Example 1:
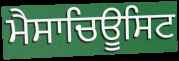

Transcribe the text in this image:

ਮੈਸਾਚਿਊਸਿਟ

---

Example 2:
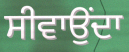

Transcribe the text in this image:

ਸੀਵਾਉਂਦਾ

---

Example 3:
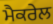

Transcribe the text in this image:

ਮੈਕਰੇਲ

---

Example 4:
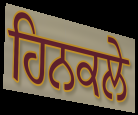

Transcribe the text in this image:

ਹਿਨਕਲੇ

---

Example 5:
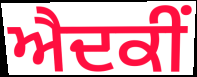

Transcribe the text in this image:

ਐਦਕੀਂ